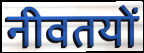
नीवतयों